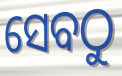
ସେବଠୁ